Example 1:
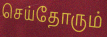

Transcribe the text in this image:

செய்தோரும்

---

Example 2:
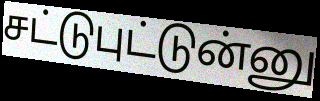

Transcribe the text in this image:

சட்டுபுட்டுன்னு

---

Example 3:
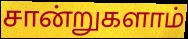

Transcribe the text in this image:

சான்றுகளாம்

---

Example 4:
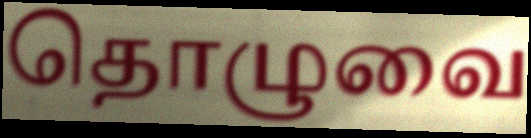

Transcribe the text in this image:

தொழுவை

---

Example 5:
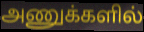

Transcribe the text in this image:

அணுக்களில்